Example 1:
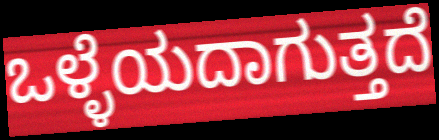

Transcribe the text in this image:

ಒಳ್ಳೆಯದಾಗುತ್ತದೆ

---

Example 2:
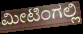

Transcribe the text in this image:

ಮೀಟಿಂಗಲ್ಲಿ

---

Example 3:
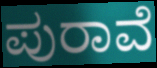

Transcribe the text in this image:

ಪುರಾವೆ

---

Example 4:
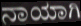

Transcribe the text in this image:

ನಾಯಾಗಿ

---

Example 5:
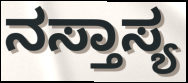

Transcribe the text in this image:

ನಸ್ತಾಸ್ಯ